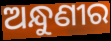
ଅନ୍ଧୁଣୀର